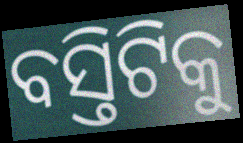
ବସ୍ତିଟିକୁ